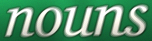
nouns